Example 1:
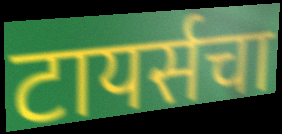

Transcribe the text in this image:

टायर्सचा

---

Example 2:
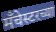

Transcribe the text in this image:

मँचेस्टरच्या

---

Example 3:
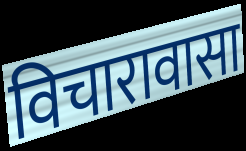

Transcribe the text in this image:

विचारावासा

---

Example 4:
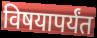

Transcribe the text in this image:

विषयापर्यंत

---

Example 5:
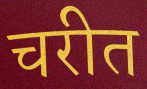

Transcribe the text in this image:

चरीत